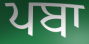
ਪਬਾ